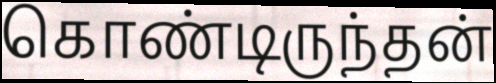
கொண்டிருந்தன்